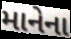
માનેના